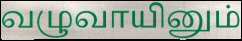
வழுவாயினும்